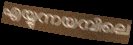
എയ്യുന്നയമ്പിലെ